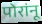
पोरांनू